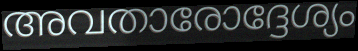
അവതാരോദ്ദേശ്യം